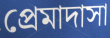
প্রেমাদাসা